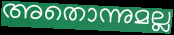
അതൊന്നുമല്ല